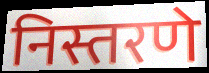
निस्तरणे